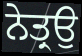
ਨੇਤ੍ਰਉ